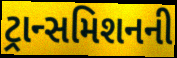
ટ્રાન્સમિશનની